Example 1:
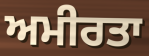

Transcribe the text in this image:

ਅਮੀਰਤਾ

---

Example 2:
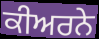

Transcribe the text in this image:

ਕੀਅਰਨੇ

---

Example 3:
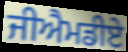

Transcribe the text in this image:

ਜੀਐਮਡੀਏ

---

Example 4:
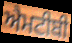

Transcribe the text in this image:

ਐਮਟੀਬੀ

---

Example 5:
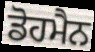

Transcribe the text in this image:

ਡੋਹਮੈਨ